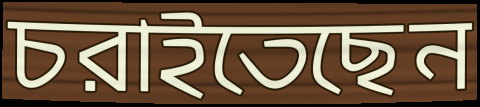
চরাইতেছেন